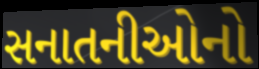
સનાતનીઓનો